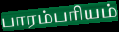
பாரம்பரியம்